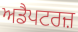
ਅਡੈਪਟਰਜ਼